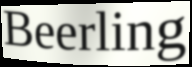
Beerling